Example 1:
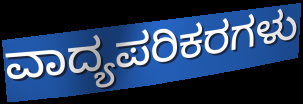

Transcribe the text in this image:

ವಾದ್ಯಪರಿಕರಗಳು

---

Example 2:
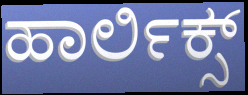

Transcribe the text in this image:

ಹಾರ್ಲಿಕ್ಸ್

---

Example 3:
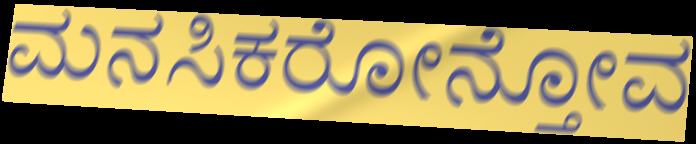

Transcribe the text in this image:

ಮನಸಿಕರೋನ್ತೋವ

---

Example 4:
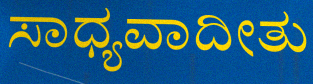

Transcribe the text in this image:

ಸಾಧ್ಯವಾದೀತು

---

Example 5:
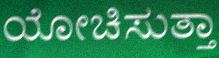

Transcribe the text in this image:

ಯೋಚಿಸುತ್ತಾ